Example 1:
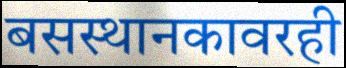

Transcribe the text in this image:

बसस्थानकावरही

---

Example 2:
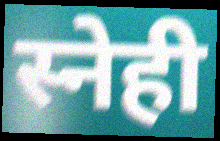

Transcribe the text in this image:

स्नेही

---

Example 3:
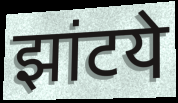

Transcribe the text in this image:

झांटये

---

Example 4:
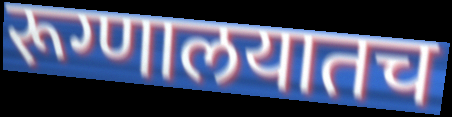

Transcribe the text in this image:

रूग्णालयातच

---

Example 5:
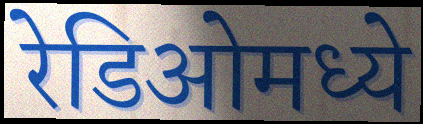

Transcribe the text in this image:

रेडिओमध्ये